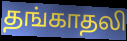
தங்காதலி